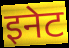
इनेट